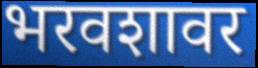
भरवशावर